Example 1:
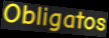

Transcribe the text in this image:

Obligatos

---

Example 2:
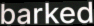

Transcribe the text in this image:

barked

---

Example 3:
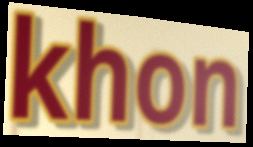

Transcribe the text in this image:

khon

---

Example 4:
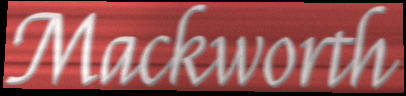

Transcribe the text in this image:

Mackworth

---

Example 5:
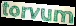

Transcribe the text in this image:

torvum